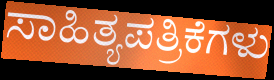
ಸಾಹಿತ್ಯಪತ್ರಿಕೆಗಳು